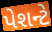
પેશન્ટે